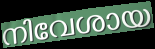
നിവേശായ